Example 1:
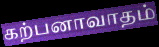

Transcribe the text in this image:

கற்பனாவாதம்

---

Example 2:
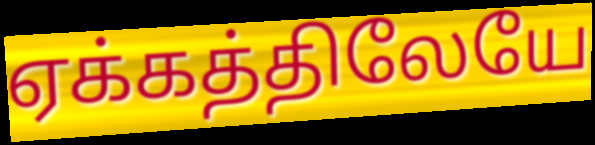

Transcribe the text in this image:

ஏக்கத்திலேயே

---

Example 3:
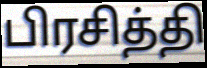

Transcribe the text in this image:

பிரசித்தி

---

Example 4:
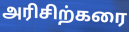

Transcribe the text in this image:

அரிசிற்கரை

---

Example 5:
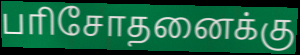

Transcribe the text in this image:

பரிசோதனைக்கு